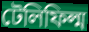
টেলিফিল্ম